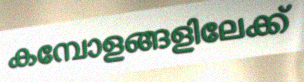
കമ്പോളങ്ങളിലേക്ക്